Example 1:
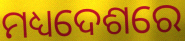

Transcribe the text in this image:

ମଧ୍ୟଦେଶରେ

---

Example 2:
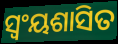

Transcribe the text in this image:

ସ୍ୱଂୟଶାସିତ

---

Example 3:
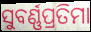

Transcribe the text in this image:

ସୁବର୍ଣ୍ଣପ୍ରତିମା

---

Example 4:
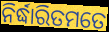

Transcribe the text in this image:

ନିର୍ଦ୍ଧାରିତମତେ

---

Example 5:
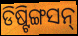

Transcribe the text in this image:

ଡିଷ୍ଟିଙ୍ଗସନ୍